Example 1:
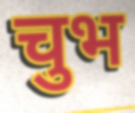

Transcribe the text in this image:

चुभ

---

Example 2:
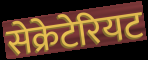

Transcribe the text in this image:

सेक्रेटेरियट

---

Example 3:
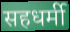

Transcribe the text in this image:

सहधर्मी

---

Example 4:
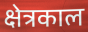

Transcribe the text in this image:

क्षेत्रकाल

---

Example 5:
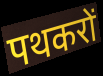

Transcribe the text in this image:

पथकरों